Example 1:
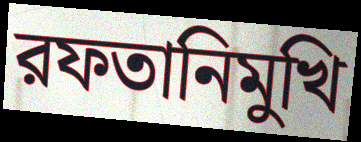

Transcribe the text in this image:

রফতানিমুখি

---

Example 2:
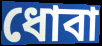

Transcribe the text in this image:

ধোবা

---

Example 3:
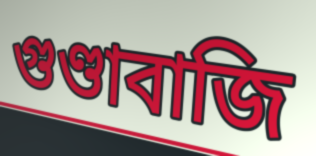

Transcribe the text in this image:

গুণ্ডাবাজি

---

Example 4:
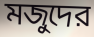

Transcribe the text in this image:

মজুদের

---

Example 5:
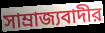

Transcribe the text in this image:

সাম্রাজ্যবাদীর